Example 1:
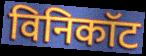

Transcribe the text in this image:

विनिकॉट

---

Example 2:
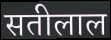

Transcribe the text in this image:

सतीलाल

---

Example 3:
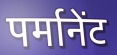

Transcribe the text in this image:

पर्मानेंट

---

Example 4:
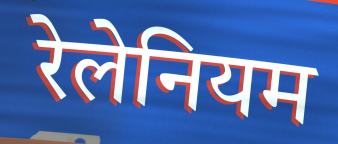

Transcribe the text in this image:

रेलेनियम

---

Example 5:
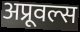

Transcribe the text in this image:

अप्रूवल्स